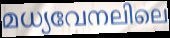
മധ്യവേനലിലെ